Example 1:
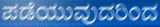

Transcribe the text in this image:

ಪಡೆಯುವುದರಿಂದ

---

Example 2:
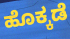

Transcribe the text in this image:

ಹೊಕ್ಕಡೆ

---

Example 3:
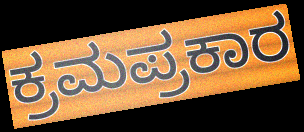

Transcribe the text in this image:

ಕ್ರಮಪ್ರಕಾರ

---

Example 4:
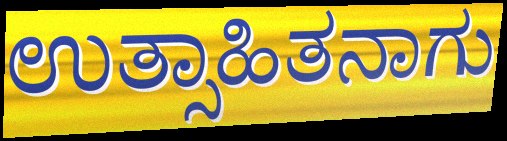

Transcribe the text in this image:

ಉತ್ಸಾಹಿತನಾಗು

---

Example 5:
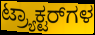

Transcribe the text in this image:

ಟ್ರ್ಯಾಕ್ಟರ್‌ಗಳ